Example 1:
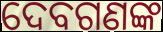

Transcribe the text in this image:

ଦେବଗଣଙ୍କ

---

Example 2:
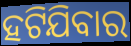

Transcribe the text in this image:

ହଟିଯିବାର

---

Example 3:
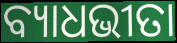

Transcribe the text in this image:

ବ୍ୟାଧଭୀତା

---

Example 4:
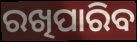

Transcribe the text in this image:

ରଖିପାରିବ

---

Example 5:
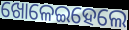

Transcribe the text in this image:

ଖୋଳେଇହେଲେ